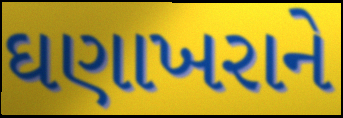
ઘણાખરાને